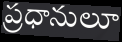
ప్రధానులూ